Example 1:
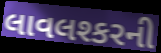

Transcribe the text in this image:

લાવલશ્કરની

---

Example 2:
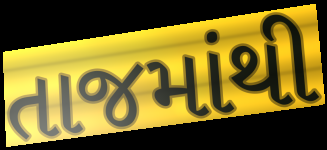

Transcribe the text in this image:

તાજમાંથી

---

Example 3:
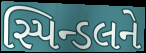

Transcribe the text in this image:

સ્પિન્ડલને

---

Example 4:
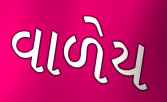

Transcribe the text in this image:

વાળેય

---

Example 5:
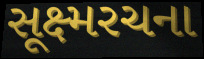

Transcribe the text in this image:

સૂક્ષ્મરચના